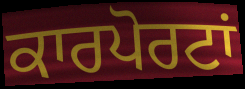
ਕਾਰਪੋਰਟਾਂ